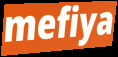
mefiya